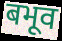
बभूव